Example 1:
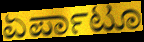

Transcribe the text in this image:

ಏರ್ಪಾಟೂ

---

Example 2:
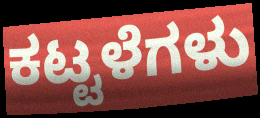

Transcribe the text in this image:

ಕಟ್ಟಳೆಗಳು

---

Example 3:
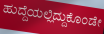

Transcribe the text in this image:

ಹುದ್ದೆಯಲ್ಲಿದ್ದುಕೊಂಡೇ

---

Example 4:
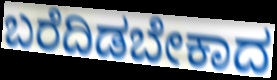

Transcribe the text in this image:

ಬರೆದಿಡಬೇಕಾದ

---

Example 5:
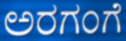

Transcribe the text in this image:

ಅರಗಂಗೆ